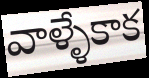
వాళ్ళేకాక